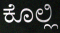
ಕೊಲ್ಲಿ